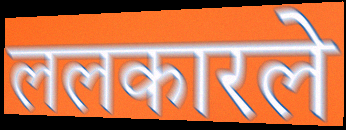
ललकारले